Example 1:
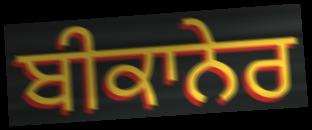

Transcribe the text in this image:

ਬੀਕਾਨੇਰ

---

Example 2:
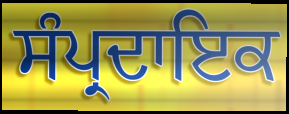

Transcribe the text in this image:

ਸੰਪ੍ਰਦਾਇਕ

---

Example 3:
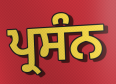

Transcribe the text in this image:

ਪ੍ਰਸੰਨ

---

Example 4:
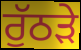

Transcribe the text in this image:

ਰੁੱਠੜੇ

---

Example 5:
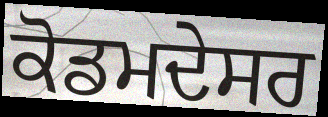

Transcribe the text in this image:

ਕੋਡਮਦੇਸਰ